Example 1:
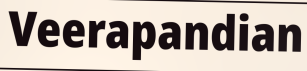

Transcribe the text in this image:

Veerapandian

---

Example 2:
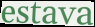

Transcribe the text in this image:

estava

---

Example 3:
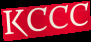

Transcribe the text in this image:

KCCC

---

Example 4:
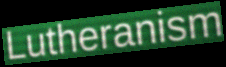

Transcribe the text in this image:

Lutheranism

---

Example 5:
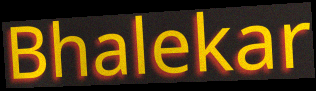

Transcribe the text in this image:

Bhalekar